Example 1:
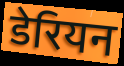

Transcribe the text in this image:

डेरियन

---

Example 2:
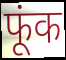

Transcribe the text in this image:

फूंक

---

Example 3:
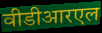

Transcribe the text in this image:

वीडीआरएल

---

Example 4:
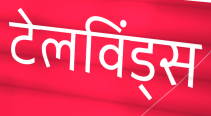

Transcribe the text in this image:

टेलविंड्स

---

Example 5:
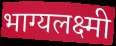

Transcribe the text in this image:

भाग्यलक्ष्मी